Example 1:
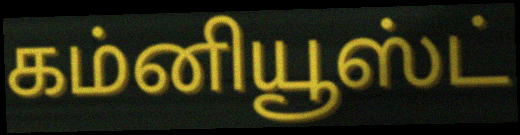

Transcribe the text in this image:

கம்னியூஸ்ட்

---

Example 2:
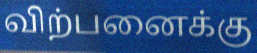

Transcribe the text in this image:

விற்பனைக்கு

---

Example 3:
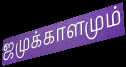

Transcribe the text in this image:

ஜமுக்காளமும்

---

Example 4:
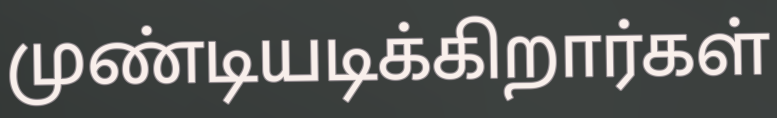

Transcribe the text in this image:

முண்டியடிக்கிறார்கள்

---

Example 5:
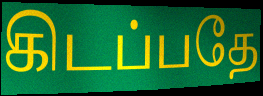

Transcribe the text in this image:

கிடப்பதே